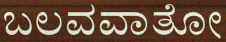
ಬಲವವಾತೋ